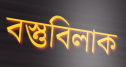
বস্তুবিলাক